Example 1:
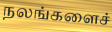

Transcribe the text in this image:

நலங்களைச்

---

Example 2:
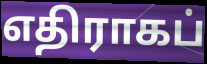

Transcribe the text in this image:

எதிராகப்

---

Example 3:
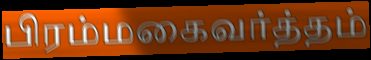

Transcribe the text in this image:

பிரம்மகைவர்த்தம்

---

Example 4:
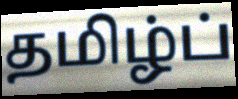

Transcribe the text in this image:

தமிழ்ப்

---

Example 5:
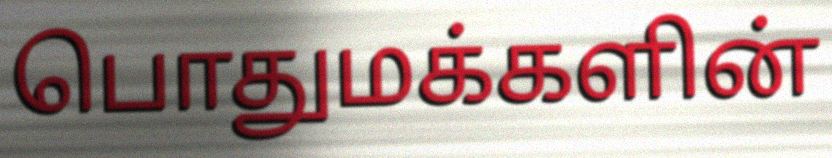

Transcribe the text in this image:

பொதுமக்களின்